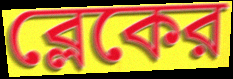
ব্লেকের